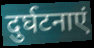
दुर्घटनाएं